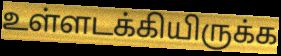
உள்ளடக்கியிருக்க